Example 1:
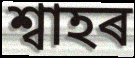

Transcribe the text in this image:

শ্বাহৰ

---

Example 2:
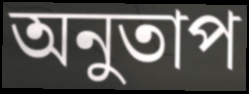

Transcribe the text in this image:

অনুতাপ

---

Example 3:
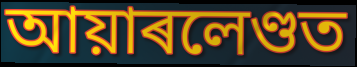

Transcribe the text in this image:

আয়াৰলেণ্ডত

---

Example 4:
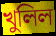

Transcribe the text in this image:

খুলিল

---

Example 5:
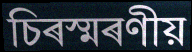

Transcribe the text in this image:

চিৰস্মৰণীয়